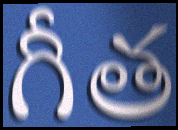
గీత